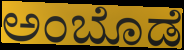
ಅಂಬೊಡೆ